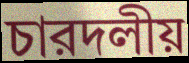
চারদলীয়